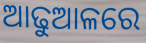
ଆଢୁଆଳରେ